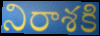
నిరాశకి